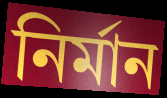
নির্মান